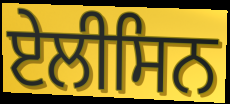
ਏਲੀਸਿਨ